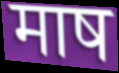
माष